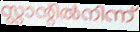
സ്റ്റാന്റിൽനിന്ന്